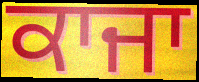
ਕਾਜਾ